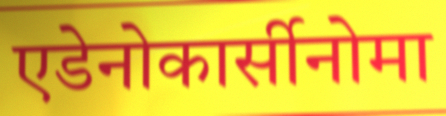
एडेनोकार्सीनोमा